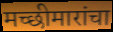
मच्छीमारांचा